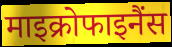
माइक्रोफाइनैंस